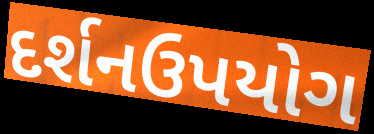
દર્શનઉપયોગ